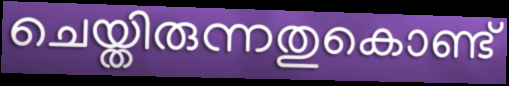
ചെയ്തിരുന്നതുകൊണ്ട്